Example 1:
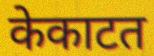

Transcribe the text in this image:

केकाटत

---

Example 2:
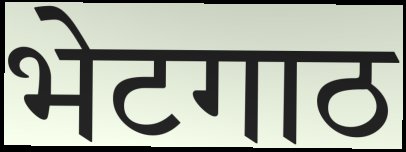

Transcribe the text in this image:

भेटगाठ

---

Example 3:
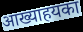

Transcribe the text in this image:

आख्याहयका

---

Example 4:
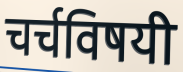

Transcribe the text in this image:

चर्चविषयी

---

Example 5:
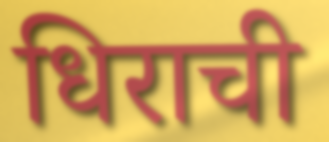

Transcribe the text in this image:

धिराची